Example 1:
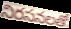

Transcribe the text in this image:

నిరసనలతో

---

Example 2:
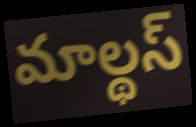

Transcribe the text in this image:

మాల్థస్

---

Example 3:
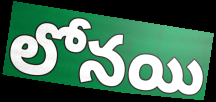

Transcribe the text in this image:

లోనయి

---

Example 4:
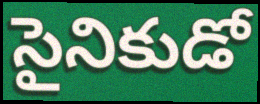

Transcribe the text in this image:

సైనికుడో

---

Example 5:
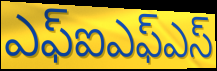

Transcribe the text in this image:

ఎఫ్ఐఎఫ్ఎస్